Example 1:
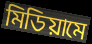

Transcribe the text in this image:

মিডিয়ামে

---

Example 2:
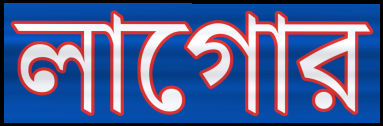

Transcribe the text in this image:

লাগোর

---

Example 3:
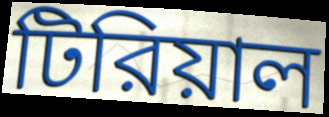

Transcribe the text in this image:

টিরিয়াল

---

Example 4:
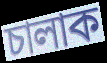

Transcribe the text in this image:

চালাক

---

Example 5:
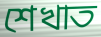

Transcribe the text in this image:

শেখাত